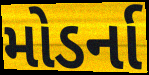
મોડર્ના